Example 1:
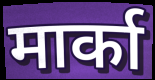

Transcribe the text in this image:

मार्का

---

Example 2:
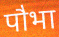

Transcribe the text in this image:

पौभा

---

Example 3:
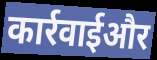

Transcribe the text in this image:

कार्रवाईऔर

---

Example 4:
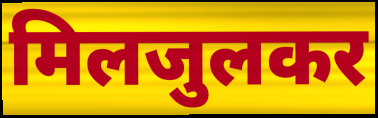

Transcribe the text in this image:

मिलजुलकर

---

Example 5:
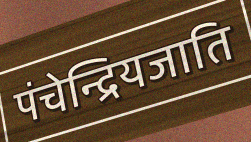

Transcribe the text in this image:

पंचेन्द्रियजाति